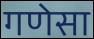
गणेसा